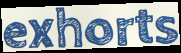
exhorts